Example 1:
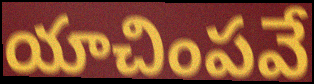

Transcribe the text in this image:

యాచింపవే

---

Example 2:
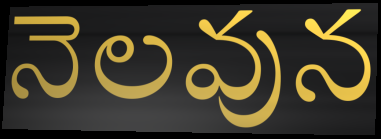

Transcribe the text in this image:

నెలవున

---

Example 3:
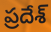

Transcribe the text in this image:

ప్రదేశ్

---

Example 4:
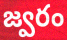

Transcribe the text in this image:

జ్వరం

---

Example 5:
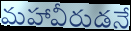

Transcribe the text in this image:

మహావీరుడనే